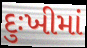
દુઃખીમાં